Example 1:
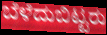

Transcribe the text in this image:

ಬೆಳೆದುಬಿಟ್ಟರು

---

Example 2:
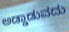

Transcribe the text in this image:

ಅಡ್ಡಾಡುವದು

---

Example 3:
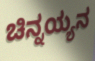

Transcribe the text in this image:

ಚಿನ್ನಯ್ಯನ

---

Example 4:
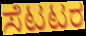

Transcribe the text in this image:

ಸೆಟಟರ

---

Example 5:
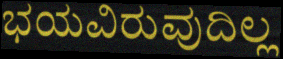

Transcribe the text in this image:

ಭಯವಿರುವುದಿಲ್ಲ